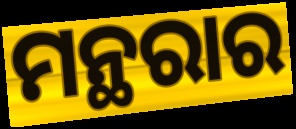
ମନ୍ଥରାର